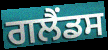
ਗਲੈਂਡਸ